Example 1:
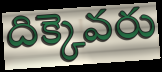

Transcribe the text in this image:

దిక్కెవరు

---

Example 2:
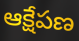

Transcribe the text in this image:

ఆక్షేపణ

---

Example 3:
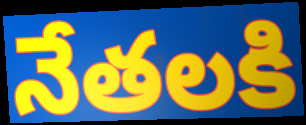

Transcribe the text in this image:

నేతలకి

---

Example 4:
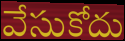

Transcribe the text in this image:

వేసుకోదు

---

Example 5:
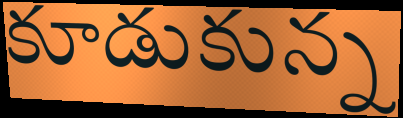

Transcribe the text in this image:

కూడుకున్న